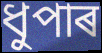
ধুপাৰ